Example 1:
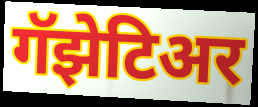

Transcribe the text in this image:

गॅझेटिअर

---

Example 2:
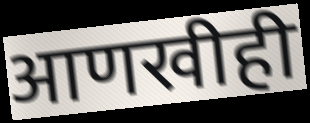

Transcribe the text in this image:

आणखीही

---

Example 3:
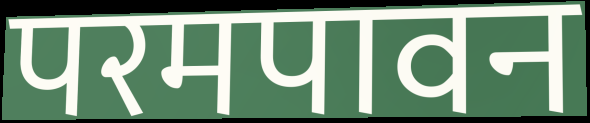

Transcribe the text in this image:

परमपावन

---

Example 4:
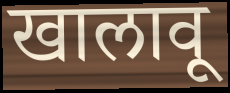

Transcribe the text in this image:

खालावू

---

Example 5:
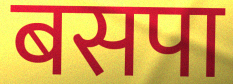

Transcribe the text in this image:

बसपा